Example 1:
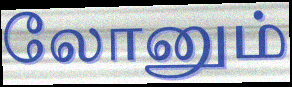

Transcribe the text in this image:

லோனும்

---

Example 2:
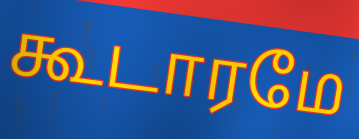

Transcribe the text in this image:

கூடாரமே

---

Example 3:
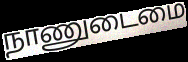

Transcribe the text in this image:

நாணுடைமை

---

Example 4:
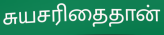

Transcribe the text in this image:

சுயசரிதைதான்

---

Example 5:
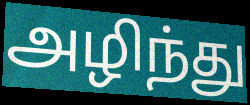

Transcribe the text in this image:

அழிந்து